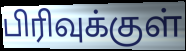
பிரிவுக்குள்